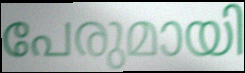
പേരുമായി